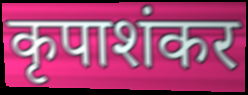
कृपाशंकर